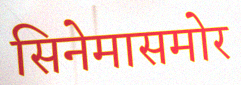
सिनेमासमोर